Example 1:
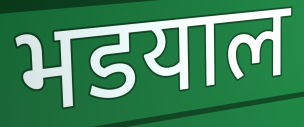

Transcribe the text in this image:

भडयाल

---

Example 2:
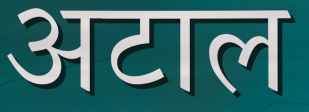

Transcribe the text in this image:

अटाल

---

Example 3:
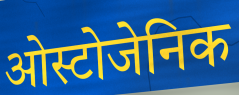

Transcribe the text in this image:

ओस्टोजेनिक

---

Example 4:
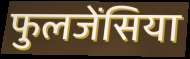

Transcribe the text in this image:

फुलजेंसिया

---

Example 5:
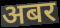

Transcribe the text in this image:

अबर